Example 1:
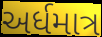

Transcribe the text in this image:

અર્ધમાત્ર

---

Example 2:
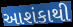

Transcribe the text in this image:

આશંકાથી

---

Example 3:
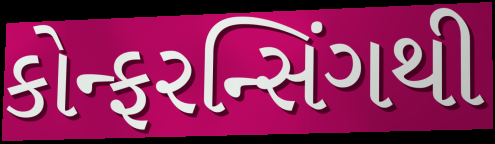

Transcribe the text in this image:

કોન્ફરન્સિંગથી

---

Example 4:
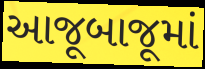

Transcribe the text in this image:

આજૂબાજૂમાં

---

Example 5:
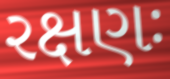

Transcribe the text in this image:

રક્ષણઃ